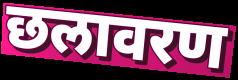
छलावरण